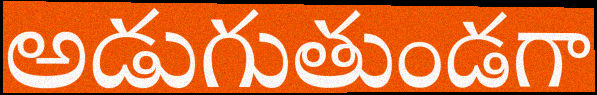
అడుగుతుండగా